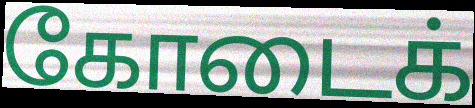
கோடைக்